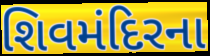
શિવમંદિરના